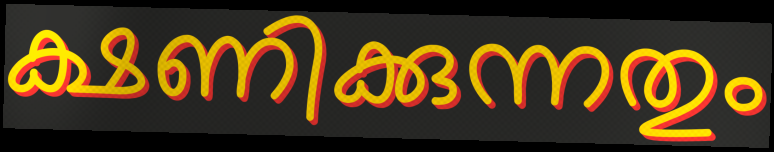
ക്ഷണിക്കുന്നതും